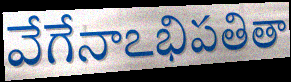
వేగేనాఽభిపతితా